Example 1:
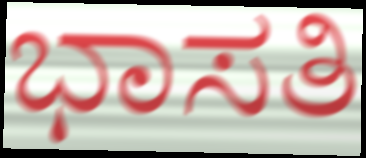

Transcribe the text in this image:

ಭಾಸತಿ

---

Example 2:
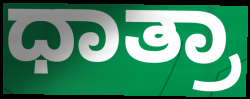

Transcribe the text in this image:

ಧಾತ್ರಾ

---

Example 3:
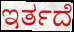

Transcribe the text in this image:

ಇರ್ತದೆ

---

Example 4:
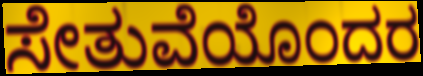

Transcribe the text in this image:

ಸೇತುವೆಯೊಂದರ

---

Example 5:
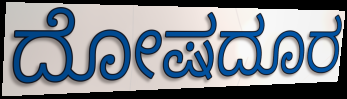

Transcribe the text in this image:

ದೋಷದೂರ